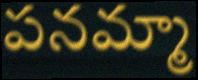
పనమ్మా